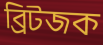
ব্রিটজক